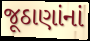
જૂઠાણાંનાં